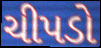
ચીપડો